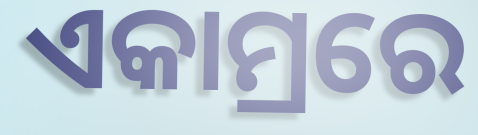
ଏକାମ୍ରରେ